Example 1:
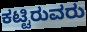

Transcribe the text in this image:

ಕಟ್ಟಿರುವರು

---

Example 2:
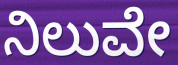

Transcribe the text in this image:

ನಿಲುವೇ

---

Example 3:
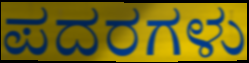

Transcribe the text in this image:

ಪದರಗಳು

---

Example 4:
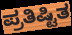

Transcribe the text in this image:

ಪ್ರತಿಷ್ಟಿತ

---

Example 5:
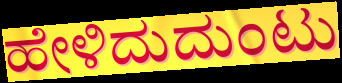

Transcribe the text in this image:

ಹೇಳಿದುದುಂಟು